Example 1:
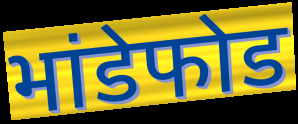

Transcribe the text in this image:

भांडेफोड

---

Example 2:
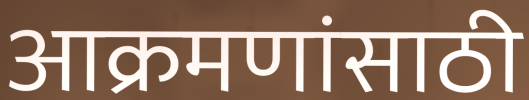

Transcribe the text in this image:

आक्रमणांसाठी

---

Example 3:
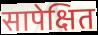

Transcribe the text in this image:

सापेक्षित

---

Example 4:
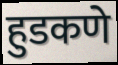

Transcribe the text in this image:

हुडकणे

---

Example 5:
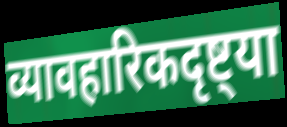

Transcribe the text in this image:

व्यावहारिकदृष्ट्या